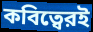
কবিত্বেরই